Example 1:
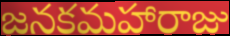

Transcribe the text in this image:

జనకమహారాజు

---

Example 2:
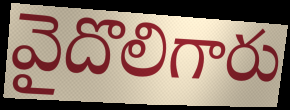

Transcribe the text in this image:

వైదొలిగారు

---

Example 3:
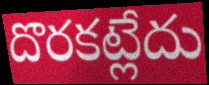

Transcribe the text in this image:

దొరకట్లేదు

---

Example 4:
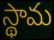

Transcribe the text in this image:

స్థామ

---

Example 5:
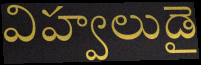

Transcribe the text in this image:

విహ్వలుడై